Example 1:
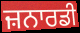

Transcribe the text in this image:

ਜ਼ਨਾਰਡੀ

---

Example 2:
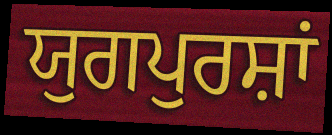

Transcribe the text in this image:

ਯੁਗਪੁਰਸ਼ਾਂ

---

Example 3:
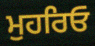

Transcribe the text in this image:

ਮੁਹਰਿਓ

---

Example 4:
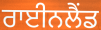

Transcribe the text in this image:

ਰਾਈਨਲੈਂਡ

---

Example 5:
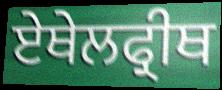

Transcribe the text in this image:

ਏਥੇਲਫ੍ਰੀਥ